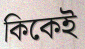
কিকেই